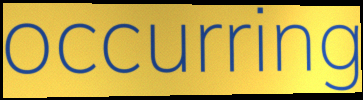
occurring